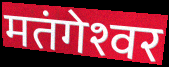
मतंगेश्वर